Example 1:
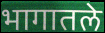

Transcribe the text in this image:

भागातले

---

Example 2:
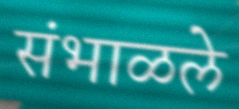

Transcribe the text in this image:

संभाळले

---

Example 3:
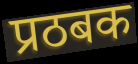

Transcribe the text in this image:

प्रठबक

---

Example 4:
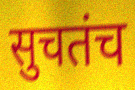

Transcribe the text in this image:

सुचतंच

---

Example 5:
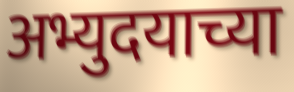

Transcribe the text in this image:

अभ्युदयाच्या